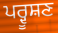
ਪਰ੍ਦੂਸ਼ਣ